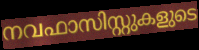
നവഫാസിസ്റ്റുകളുടെ